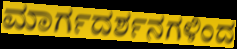
ಮಾರ್ಗದರ್ಶನಗಳಿಂದ